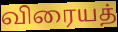
விரையத்